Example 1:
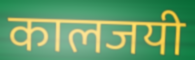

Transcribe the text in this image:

कालजयी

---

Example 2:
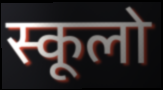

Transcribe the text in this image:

स्कूलो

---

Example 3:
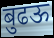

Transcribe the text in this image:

बुढऊ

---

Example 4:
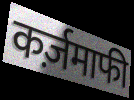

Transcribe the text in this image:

कर्ज़माफी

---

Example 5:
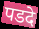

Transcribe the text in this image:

पडदे